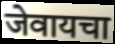
जेवायचा